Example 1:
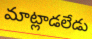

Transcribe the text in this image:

మాట్లాడలేడు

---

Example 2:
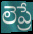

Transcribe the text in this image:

లెప్రే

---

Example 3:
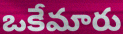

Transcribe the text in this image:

ఒకేమారు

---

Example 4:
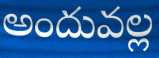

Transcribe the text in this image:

అందువల్ల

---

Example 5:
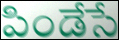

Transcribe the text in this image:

పిండేసే